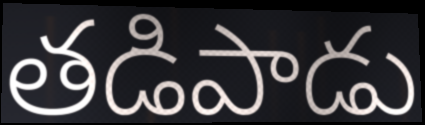
తడిపాడు